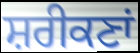
ਸ਼ਰੀਕਣਾਂ